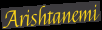
Arishtanemi